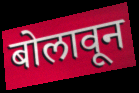
बोलावून